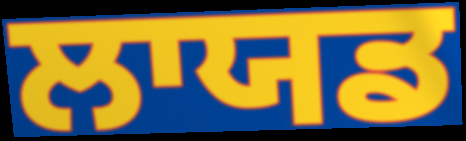
ਲਾਯਡ